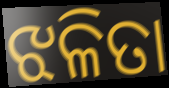
ଝଳିତା